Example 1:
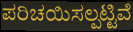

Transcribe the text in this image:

ಪರಿಚಯಿಸಲ್ಪಟ್ಟಿವೆ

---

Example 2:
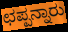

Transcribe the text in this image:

ಛಪ್ಪನ್ನಾರು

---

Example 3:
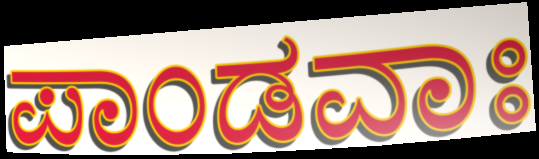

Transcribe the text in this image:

ಪಾಂಡವಾಃ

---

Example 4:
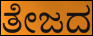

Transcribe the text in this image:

ತೇಜದ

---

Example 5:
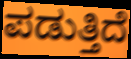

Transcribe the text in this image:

ಪಡುತ್ತಿದೆ